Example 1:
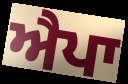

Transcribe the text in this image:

ਐਪਾ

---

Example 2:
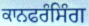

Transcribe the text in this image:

ਕਾਨਫਰੰਸਿੰਗ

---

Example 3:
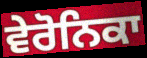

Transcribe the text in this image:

ਵੇਰੋਨਿਕਾ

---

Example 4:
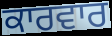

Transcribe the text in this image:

ਕਾਰਵਾਰ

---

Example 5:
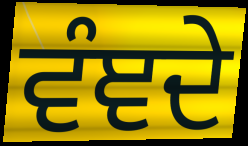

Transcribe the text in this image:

ਵੰਞਦੇ